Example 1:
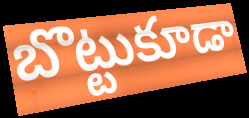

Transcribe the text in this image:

బొట్టుకూడా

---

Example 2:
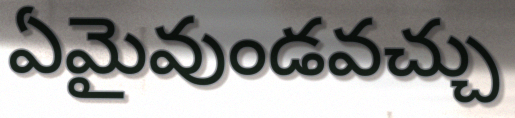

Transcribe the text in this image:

ఏమైవుండవచ్చు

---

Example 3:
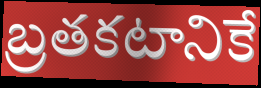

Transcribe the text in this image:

బ్రతకటానికే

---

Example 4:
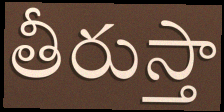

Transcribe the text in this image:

తీరుస్తా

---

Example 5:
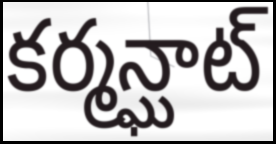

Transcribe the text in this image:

కర్మన్ఘాట్